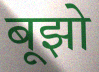
बूझो